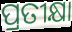
ପ୍ରତୀକ୍ଷା